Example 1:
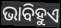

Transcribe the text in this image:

ଭାବିହୁଏ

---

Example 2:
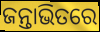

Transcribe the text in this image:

ଜନ୍ତାଭିତରେ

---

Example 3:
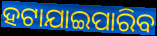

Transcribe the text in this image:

ହଟାଯାଇପାରିବ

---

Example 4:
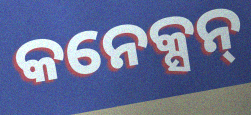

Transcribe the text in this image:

କନେକ୍ସନ୍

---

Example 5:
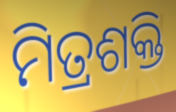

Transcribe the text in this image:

ମିତ୍ରଶକ୍ତି